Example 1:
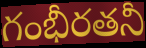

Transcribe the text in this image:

గంభీరతనీ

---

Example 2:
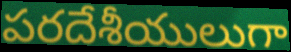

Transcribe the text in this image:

పరదేశీయులుగా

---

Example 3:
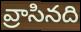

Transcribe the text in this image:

వ్రాసినది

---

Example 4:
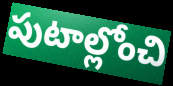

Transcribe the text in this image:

పుటాల్లోంచి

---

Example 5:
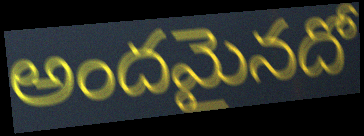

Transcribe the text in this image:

అందమైనదో